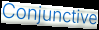
Conjunctive